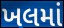
ખલમાં